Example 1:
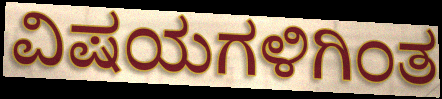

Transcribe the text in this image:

ವಿಷಯಗಳಿಗಿಂತ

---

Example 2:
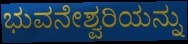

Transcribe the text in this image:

ಭುವನೇಶ್ವರಿಯನ್ನು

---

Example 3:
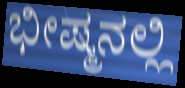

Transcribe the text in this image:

ಭೀಷ್ಮನಲ್ಲಿ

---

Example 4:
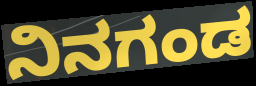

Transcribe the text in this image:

ನಿನಗಂಡ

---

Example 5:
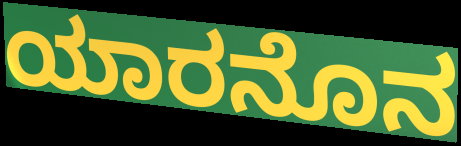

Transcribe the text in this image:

ಯಾರನೊನ